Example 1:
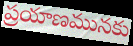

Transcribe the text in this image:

ప్రయాణమునకు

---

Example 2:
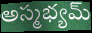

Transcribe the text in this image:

అస్మభ్యమ్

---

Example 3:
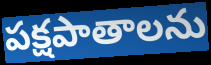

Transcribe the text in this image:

పక్షపాతాలను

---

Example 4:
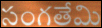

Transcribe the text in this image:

సంగతేమి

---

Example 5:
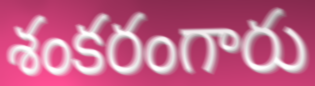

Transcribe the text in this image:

శంకరంగారు